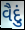
વૈદું